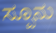
ಸ್ಪೂನು